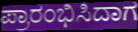
ಪ್ರಾರಂಭಿಸಿದಾಗ